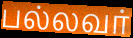
பல்லவர்